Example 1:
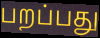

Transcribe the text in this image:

பறப்பது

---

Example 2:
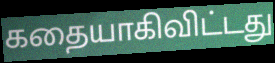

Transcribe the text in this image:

கதையாகிவிட்டது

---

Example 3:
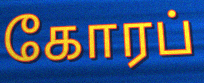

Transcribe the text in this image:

கோரப்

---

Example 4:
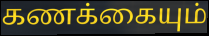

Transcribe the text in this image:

கணக்கையும்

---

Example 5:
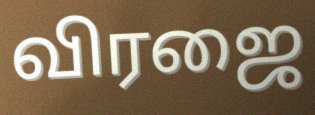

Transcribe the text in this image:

விரஜை